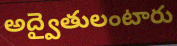
అద్వైతులంటారు